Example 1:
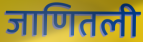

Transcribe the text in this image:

जाणितली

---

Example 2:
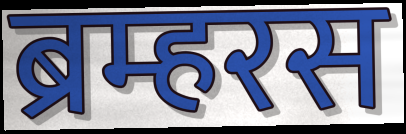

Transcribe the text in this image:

ब्रम्हरस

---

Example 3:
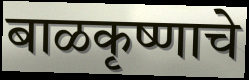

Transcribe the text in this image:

बाळकृष्णाचे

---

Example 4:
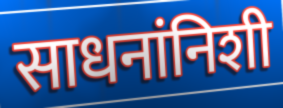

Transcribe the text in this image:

साधनांनिशी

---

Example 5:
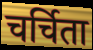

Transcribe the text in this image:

चर्चिता